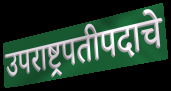
उपराष्ट्रपतीपदाचे